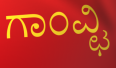
ಗಾಂವ್ಟಿ